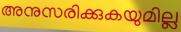
അനുസരിക്കുകയുമില്ല